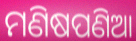
ମଣିଷପଣିଆ